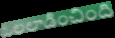
ఓలలాడించింది